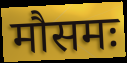
मौसमः